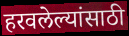
हरवलेल्यांसाठी